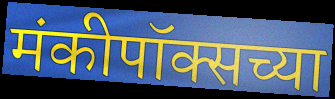
मंकीपॉक्सच्या